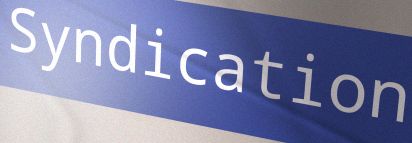
Syndication